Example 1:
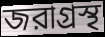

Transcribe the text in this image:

জরাগ্রস্থ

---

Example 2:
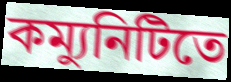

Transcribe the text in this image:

কম্যুনিটিতে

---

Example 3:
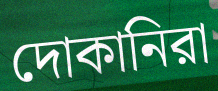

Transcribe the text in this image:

দোকানিরা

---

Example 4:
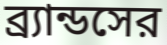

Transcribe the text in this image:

ব্র্যান্ডসের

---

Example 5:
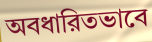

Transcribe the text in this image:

অবধারিতভাবে